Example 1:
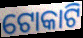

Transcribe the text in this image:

ଟୋକାଟି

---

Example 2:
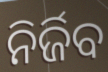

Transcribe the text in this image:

ନିର୍ଜିବ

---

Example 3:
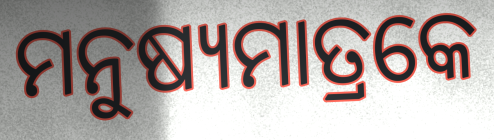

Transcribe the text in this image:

ମନୁଷ୍ୟମାତ୍ରକେ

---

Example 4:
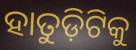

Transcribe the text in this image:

ହାତୁଡ଼ିଟିକୁ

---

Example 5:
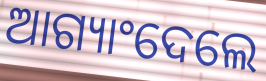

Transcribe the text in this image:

ଆଗ୍ୟାଂଦେଲେ